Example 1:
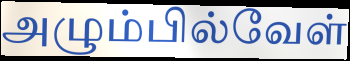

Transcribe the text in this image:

அழும்பில்வேள்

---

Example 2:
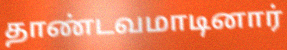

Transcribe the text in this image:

தாண்டவமாடினார்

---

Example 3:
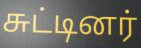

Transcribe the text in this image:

சுட்டினர்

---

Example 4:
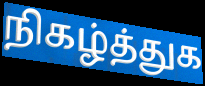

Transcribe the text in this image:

நிகழ்த்துக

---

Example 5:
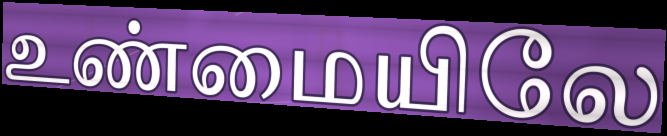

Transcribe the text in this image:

உண்மையிலே